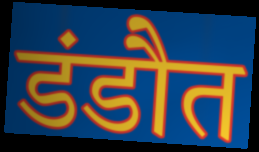
डंडौत